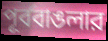
পূর্ববাঙলার